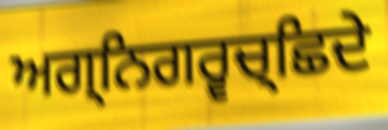
ਅਗ੍ਨਿਗਰ੍ਵਚ੍ਛਿਦੇ